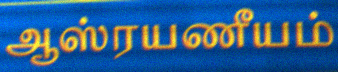
ஆஸ்ரயணீயம்